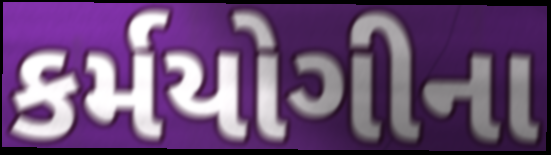
કર્મયોગીના